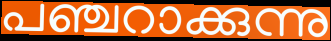
പഞ്ചറാക്കുന്നു